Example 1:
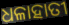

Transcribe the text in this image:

ଧଳାହାତୀ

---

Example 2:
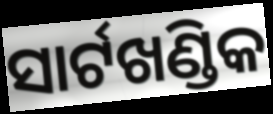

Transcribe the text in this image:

ସାର୍ଟଖଣ୍ଡିକ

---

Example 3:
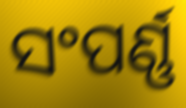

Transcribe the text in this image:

ସଂପର୍ଣ୍ଣ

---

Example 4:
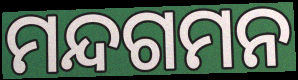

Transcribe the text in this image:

ମନ୍ଦଗମନ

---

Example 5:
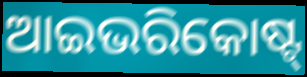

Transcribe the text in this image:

ଆଇଭରିକୋଷ୍ଟ୍